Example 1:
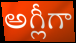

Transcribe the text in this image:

అగ్లీగా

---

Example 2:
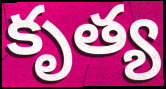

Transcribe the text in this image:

కృత్య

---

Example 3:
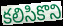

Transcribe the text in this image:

కలిసికొని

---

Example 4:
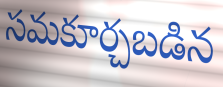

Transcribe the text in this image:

సమకూర్చబడిన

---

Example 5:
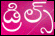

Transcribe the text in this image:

డ్రిల్స్